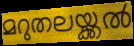
മറുതലയ്ക്കൽ